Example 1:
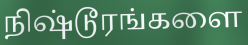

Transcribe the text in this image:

நிஷ்டூரங்களை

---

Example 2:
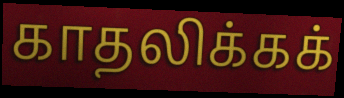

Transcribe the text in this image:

காதலிக்கக்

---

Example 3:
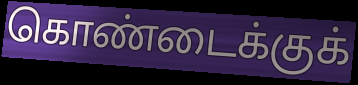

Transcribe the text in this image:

கொண்டைக்குக்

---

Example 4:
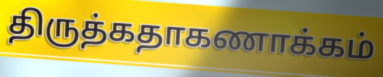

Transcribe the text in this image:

திருத்கதாகணாக்கம்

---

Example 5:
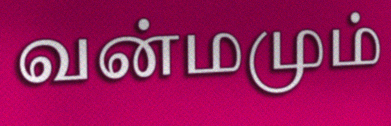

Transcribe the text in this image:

வன்மமும்